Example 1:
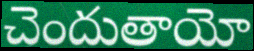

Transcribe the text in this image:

చెందుతాయో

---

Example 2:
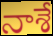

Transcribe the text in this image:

నాశే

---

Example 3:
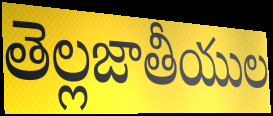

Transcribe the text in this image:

తెల్లజాతీయుల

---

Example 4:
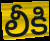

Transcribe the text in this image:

లీకి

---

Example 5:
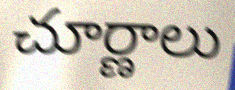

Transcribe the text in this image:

చూర్ణాలు